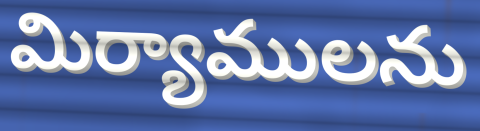
మిర్యాములను